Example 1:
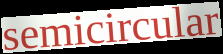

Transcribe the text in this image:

semicircular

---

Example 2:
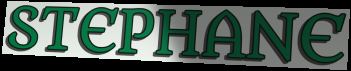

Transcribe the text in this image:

STEPHANE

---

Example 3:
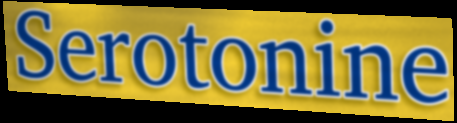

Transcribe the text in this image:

Serotonine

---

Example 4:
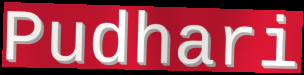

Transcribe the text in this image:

Pudhari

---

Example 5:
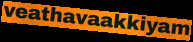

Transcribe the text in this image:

veathavaakkiyam